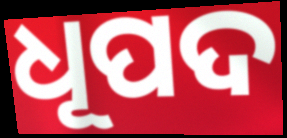
ଧୂପଦ